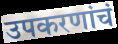
उपकरणांचं